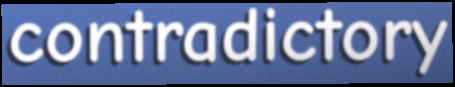
contradictory